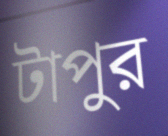
টাপুর